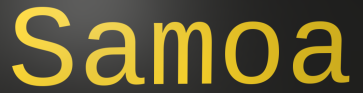
Samoa